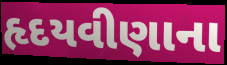
હૃદયવીણાના